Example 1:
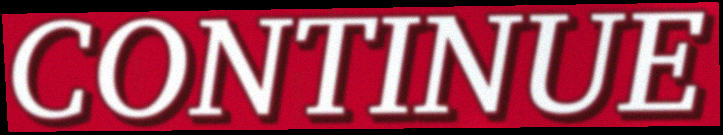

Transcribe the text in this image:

CONTINUE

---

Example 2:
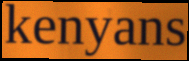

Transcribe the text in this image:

kenyans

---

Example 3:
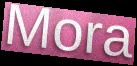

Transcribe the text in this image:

Mora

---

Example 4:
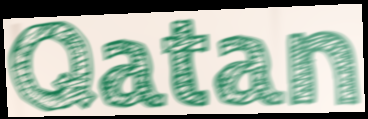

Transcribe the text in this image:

Qatan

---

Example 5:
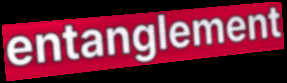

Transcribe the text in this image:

entanglement